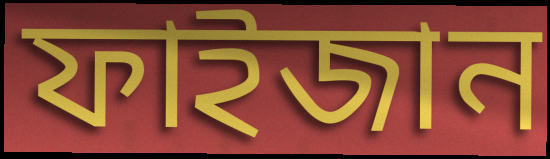
ফাইজান